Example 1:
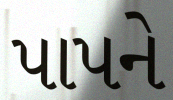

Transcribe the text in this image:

પાપને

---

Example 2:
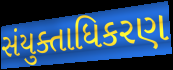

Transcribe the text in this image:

સંયુક્તાધિકરણ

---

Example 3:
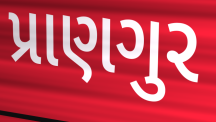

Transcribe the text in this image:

પ્રાણગુર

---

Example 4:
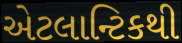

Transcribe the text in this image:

એટલાન્ટિકથી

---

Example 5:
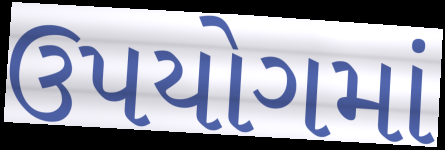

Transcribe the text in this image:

ઉપયોગમાં